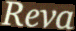
Reva